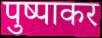
पुष्पाकर